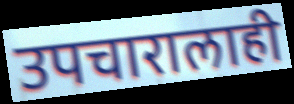
उपचारालाही